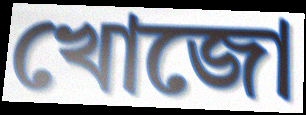
খোজো